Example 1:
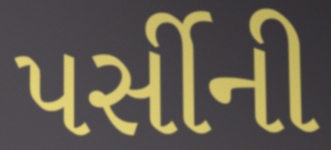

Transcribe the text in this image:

પર્સીની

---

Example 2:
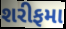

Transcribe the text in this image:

શરીફમા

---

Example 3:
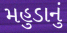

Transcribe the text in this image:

મહુડાનું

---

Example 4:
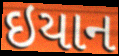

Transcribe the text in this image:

ઇયાન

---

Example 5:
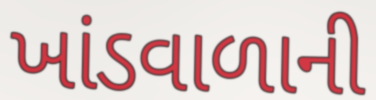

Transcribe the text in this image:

ખાંડવાળાની